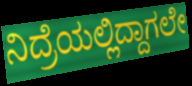
ನಿದ್ರೆಯಲ್ಲಿದ್ದಾಗಲೇ